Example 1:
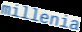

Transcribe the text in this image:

millenia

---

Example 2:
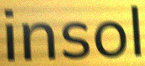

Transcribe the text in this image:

insol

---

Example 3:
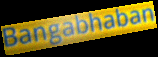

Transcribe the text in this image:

Bangabhaban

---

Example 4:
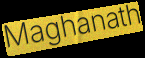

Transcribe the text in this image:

Maghanath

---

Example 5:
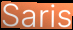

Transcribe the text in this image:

Saris